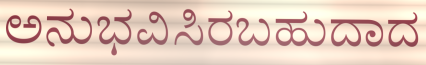
ಅನುಭವಿಸಿರಬಹುದಾದ